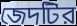
জেদটির